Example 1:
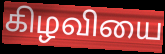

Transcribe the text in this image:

கிழவியை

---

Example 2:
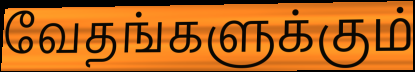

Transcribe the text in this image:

வேதங்களுக்கும்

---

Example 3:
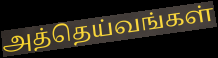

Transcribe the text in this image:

அத்தெய்வங்கள்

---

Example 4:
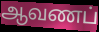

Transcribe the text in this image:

ஆவணப்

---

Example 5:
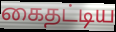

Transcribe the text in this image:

கைதட்டிய